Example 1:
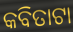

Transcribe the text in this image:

କବିତାଟା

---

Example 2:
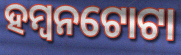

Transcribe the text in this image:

ହମ୍ବନଟୋଟା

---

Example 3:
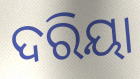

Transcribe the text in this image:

ଦରିୟା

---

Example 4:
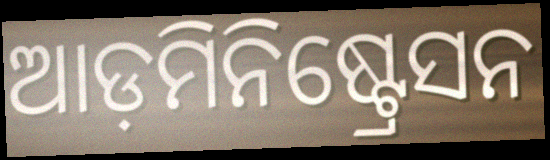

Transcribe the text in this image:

ଆଡ଼ମିନିଷ୍ଟ୍ରେସନ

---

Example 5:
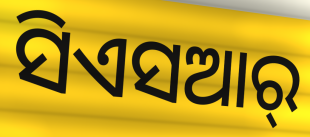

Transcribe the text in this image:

ସିଏସଆର୍